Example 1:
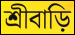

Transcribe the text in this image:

শ্রীবাড়ি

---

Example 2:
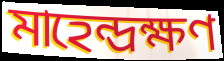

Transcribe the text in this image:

মাহেন্দ্রক্ষণ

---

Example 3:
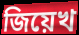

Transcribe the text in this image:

জিয়েখ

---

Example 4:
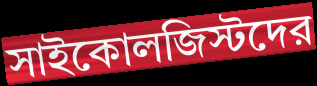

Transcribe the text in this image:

সাইকোলজিস্টদের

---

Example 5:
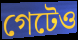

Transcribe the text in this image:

গেটেও